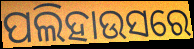
ପଲିହାଉସରେ